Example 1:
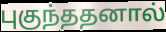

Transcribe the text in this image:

புகுந்ததனால்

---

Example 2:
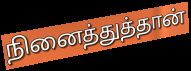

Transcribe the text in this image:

நினைத்துத்தான்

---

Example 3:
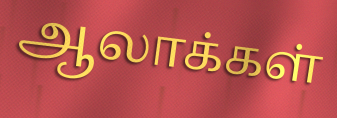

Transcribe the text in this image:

ஆலாக்கள்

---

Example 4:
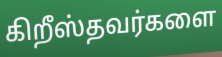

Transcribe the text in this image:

கிறீஸ்தவர்களை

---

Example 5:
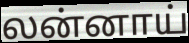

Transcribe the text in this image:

லன்னாய்